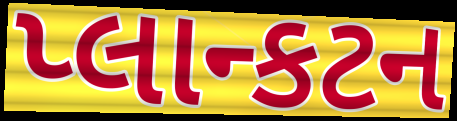
પ્લાન્કટન